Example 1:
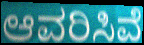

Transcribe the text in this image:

ಆವರಿಸಿವೆ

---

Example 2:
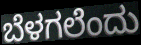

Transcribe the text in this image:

ಬೆಳಗಲೆಂದು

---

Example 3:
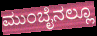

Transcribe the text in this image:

ಮುಂಬೈನಲ್ಲೂ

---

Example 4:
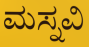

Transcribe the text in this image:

ಮಸ್ನವಿ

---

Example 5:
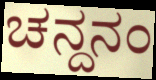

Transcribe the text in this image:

ಚನ್ದನಂ